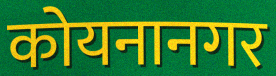
कोयनानगर